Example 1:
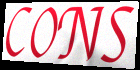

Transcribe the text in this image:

CONS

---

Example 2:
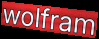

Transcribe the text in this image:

wolfram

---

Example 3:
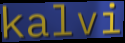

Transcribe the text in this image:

kalvi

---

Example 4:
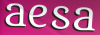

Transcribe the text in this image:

aesa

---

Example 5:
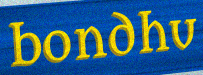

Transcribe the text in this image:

bondhu